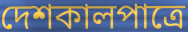
দেশকালপাত্রে